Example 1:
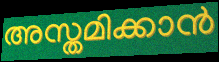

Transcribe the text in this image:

അസ്തമിക്കാൻ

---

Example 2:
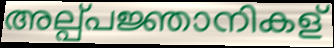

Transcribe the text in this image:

അല്പ്പജ്ഞാനികള്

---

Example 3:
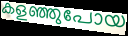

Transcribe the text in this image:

കളഞ്ഞുപോയ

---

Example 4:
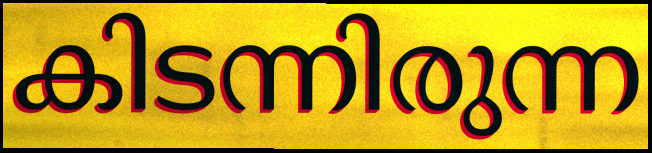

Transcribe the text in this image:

കിടന്നിരുന്ന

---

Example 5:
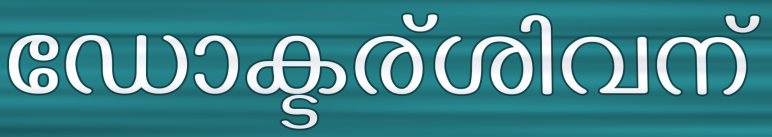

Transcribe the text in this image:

ഡോക്ടര്ശിവന്